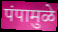
पंपामुळे